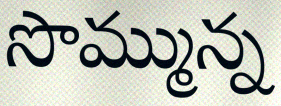
సొమ్మున్న